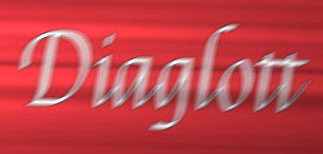
Diaglott